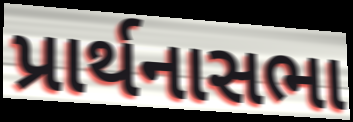
પ્રાર્થનાસભા